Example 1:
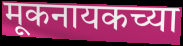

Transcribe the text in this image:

मूकनायकच्या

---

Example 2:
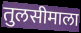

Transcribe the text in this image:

तुलसीमाला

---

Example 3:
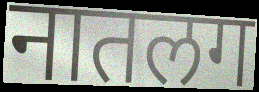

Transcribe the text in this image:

नातलग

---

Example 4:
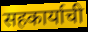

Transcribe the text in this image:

सहकार्याची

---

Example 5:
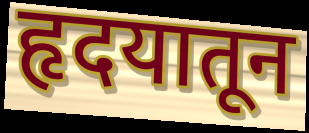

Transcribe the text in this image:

हृदयातून